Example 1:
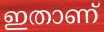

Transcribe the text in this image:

ഇതാണ്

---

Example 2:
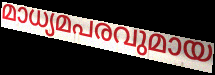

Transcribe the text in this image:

മാധ്യമപരവുമായ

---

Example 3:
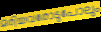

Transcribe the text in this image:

മരിച്ചവരോടുപോലും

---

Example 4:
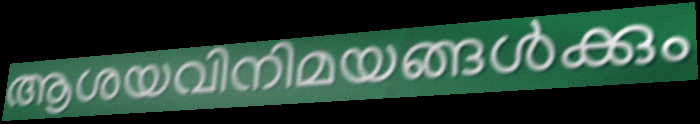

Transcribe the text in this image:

ആശയവിനിമയങ്ങൾക്കും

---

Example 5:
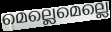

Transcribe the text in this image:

മെല്ലെമെല്ലെ